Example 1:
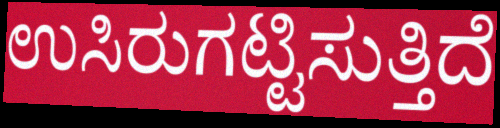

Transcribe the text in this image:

ಉಸಿರುಗಟ್ಟಿಸುತ್ತಿದೆ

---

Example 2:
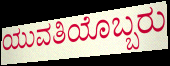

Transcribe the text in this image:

ಯುವತಿಯೊಬ್ಬರು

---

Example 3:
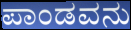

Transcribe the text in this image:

ಪಾಂಡವನು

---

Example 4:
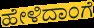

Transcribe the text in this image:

ಹೇಳಿದಾಂಗೆ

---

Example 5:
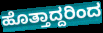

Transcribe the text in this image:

ಹೊತ್ತಾದ್ದರಿಂದ